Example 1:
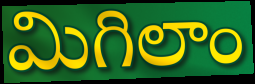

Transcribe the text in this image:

మిగిలాం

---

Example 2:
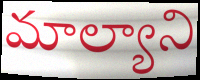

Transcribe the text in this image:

మాల్యాని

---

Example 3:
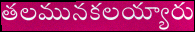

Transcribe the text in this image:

తలమునకలయ్యారు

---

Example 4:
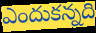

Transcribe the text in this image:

ఎందుకన్నది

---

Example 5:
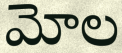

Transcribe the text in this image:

మోల